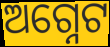
ଅଗ୍ନେଟ